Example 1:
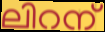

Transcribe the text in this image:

ലിറന്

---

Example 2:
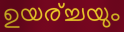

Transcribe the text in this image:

ഉയര്ച്ചയും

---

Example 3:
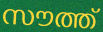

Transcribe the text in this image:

സൗത്ത്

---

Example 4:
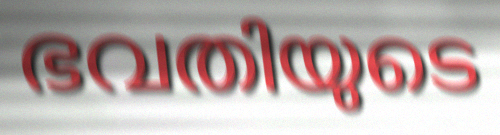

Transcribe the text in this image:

ഭവതിയുടെ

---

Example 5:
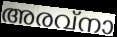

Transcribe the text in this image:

അരവ്നാ